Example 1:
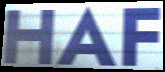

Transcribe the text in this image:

HAF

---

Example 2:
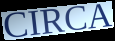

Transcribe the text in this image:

CIRCA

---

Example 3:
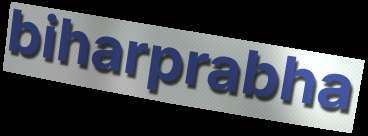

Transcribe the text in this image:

biharprabha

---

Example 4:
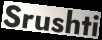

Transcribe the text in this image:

Srushti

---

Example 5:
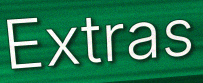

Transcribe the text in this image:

Extras